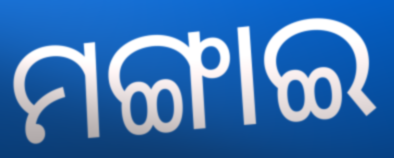
ମଙ୍ଗାଇ